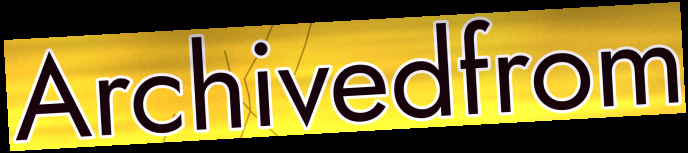
Archivedfrom